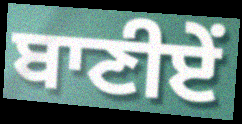
ਬਾਣੀਏਂ